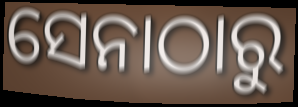
ସେନାଠାରୁ